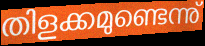
തിളക്കമുണ്ടെന്നു്